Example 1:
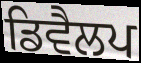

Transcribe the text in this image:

ਡਿਵੈਲਪ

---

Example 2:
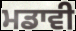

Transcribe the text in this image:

ਮਡਾਵੀ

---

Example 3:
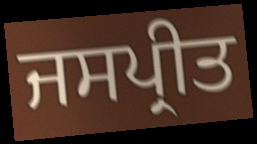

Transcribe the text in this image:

ਜਸਪ੍ਰੀਤ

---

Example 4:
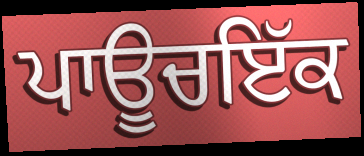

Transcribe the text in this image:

ਪਾਊਚਇੱਕ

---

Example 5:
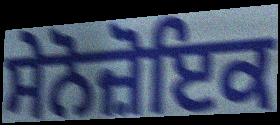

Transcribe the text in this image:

ਸੇਨੋਜ਼ੋਇਕ